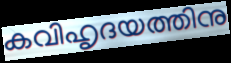
കവിഹൃദയത്തിനു